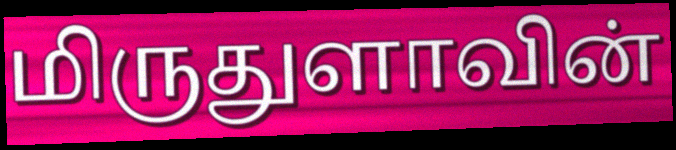
மிருதுளாவின்